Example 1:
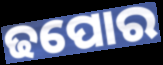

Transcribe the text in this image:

ଢପୋର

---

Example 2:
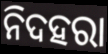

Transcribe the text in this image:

ନିଦହରା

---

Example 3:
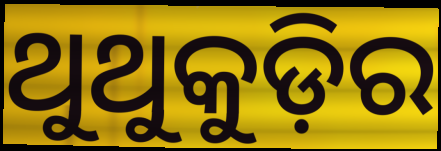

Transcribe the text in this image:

ଥୁଥୁକୁଡ଼ିର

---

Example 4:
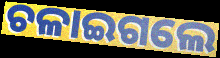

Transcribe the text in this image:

ଚଳାଇଗଲେ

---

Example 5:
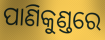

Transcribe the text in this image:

ପାଣିକୁଣ୍ଡରେ